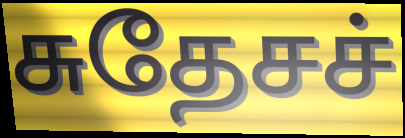
சுதேசச்